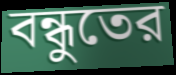
বন্ধুতের